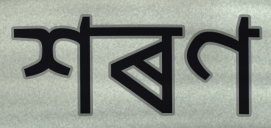
শৰণ